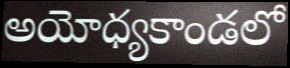
అయోధ్యకాండలో